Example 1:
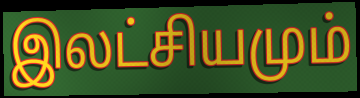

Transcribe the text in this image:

இலட்சியமும்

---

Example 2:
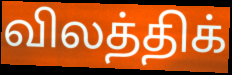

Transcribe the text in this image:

விலத்திக்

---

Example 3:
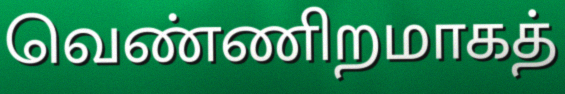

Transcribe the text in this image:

வெண்ணிறமாகத்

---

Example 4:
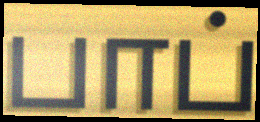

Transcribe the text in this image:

பாப்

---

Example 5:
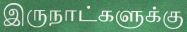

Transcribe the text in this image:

இருநாட்களுக்கு